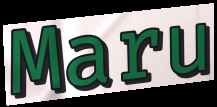
Maru